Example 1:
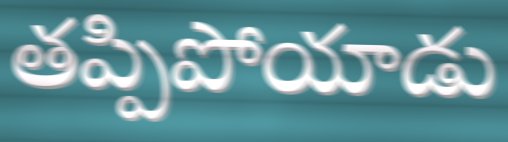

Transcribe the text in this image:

తప్పిపోయాడు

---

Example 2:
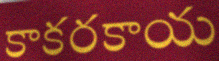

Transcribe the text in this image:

కాకరకాయ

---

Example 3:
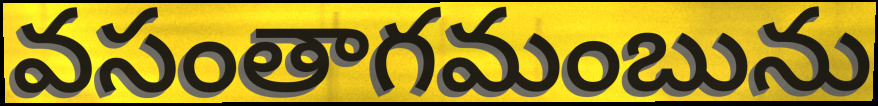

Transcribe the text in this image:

వసంతాగమంబును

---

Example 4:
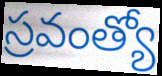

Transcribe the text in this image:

స్రవంత్యో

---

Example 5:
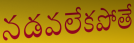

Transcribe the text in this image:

నడవలేకపోతే